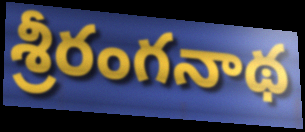
శ్రీరంగనాథ